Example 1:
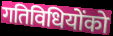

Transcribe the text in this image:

गतिविधियोंको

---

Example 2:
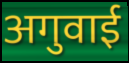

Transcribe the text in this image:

अगुवाई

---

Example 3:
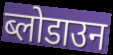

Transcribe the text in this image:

ब्लोडाउन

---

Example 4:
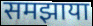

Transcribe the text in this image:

समझाया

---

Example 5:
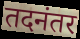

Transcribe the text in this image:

तदनंतर